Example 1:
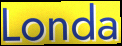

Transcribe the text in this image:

Londa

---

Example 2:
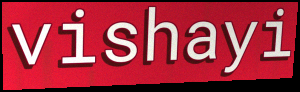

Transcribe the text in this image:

vishayi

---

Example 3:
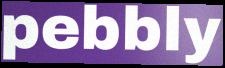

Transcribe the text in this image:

pebbly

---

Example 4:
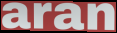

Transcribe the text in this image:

aran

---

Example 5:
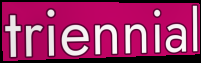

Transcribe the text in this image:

triennial